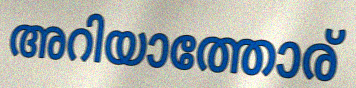
അറിയാത്തോര്